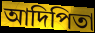
আদিপিতা